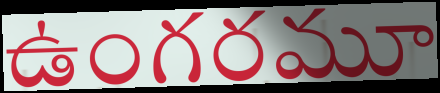
ఉంగరమూ